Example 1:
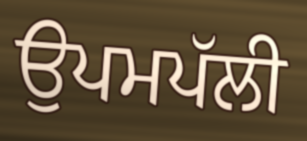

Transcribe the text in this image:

ਉਪਮਪੱਲੀ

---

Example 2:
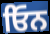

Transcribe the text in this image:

ਓਿਨ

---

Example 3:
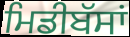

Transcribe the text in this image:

ਮਿਡੀਬੱਸਾਂ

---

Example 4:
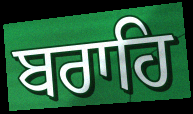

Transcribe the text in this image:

ਬਰਾਹਿ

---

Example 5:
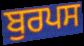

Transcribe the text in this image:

ਬੁਰਪਸ